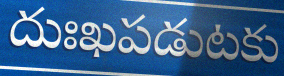
దుఃఖపడుటకు